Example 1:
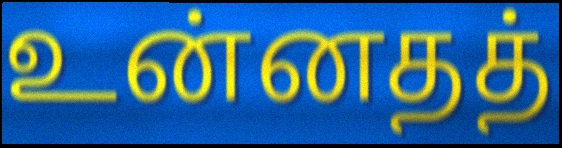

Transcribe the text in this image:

உன்னதத்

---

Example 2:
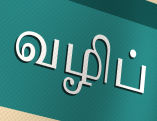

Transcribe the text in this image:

வழிப்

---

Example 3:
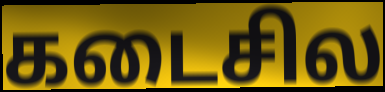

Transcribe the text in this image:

கடைசில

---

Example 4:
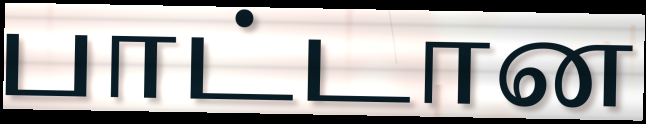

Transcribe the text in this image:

பாட்டான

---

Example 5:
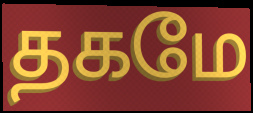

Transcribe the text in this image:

தகமே